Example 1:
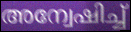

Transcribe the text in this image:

അന്വേഷിച്ച്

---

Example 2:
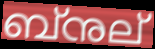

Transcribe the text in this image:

ബ്നുല്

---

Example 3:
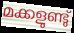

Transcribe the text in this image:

മക്കളുണ്ടു്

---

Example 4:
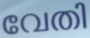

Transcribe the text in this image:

വേതി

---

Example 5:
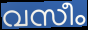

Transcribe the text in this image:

വസീം